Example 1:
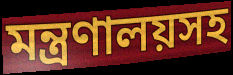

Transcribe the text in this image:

মন্ত্রণালয়সহ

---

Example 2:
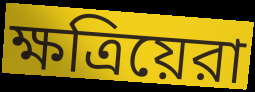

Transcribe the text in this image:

ক্ষত্রিয়েরা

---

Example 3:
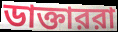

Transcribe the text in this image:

ডাক্তাররা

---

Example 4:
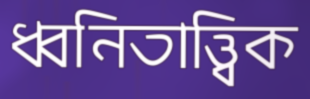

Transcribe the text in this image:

ধ্বনিতাত্ত্বিক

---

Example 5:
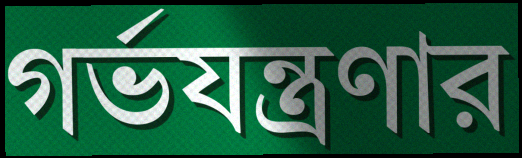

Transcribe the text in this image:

গর্ভযন্ত্রণার